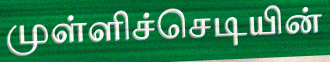
முள்ளிச்செடியின்